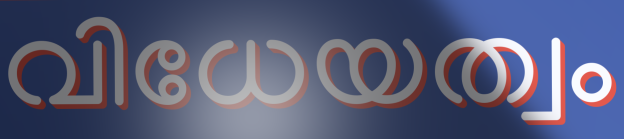
വിധേയത്വം